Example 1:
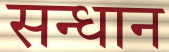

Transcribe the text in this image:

सन्धान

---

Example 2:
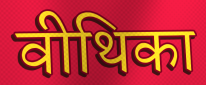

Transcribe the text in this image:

वीथिका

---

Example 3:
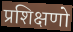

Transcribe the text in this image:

प्रशिक्षणो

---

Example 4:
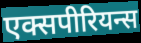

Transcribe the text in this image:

एक्सपीरियन्स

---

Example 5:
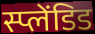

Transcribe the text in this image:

स्प्लेंडिड